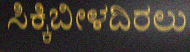
ಸಿಕ್ಕಿಬೀಳದಿರಲು